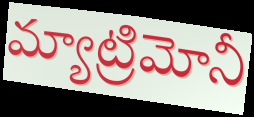
మ్యాట్రిమోనీ